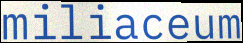
miliaceum